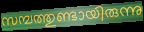
സമ്പത്തുണ്ടായിരുന്നു